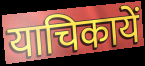
याचिकायें